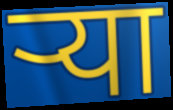
ऱ्या